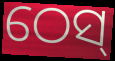
ଠେସ୍